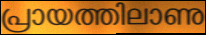
പ്രായത്തിലാണു